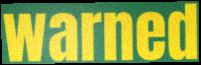
warned